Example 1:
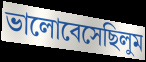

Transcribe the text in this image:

ভালোবেসেছিলুম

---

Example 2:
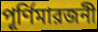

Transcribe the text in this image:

পূর্ণিমারজনী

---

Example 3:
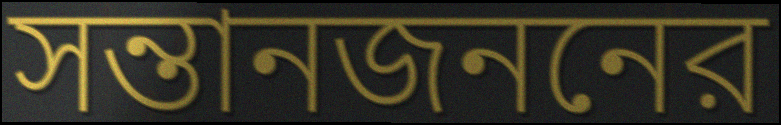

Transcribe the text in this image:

সন্তানজননের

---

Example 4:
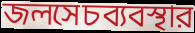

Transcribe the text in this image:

জলসেচব্যবস্থার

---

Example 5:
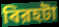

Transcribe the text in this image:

বিরহটা